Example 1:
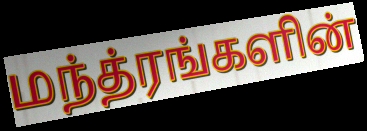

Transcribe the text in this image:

மந்த்ரங்களின்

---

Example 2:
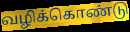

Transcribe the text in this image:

வழிக்கொண்டு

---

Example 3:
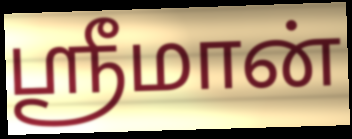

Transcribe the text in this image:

ஸ்ரீமான்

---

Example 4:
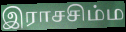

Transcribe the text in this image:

இராசசிம்ம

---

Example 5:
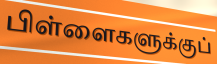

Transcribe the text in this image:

பிள்ளைகளுக்குப்